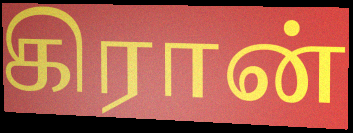
கிரான்